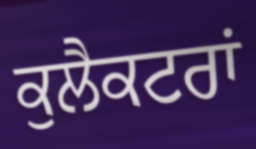
ਕੁਲੈਕਟਰਾਂ